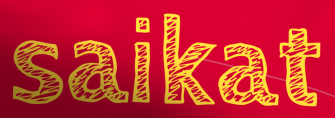
saikat